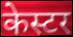
केस्टर